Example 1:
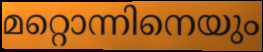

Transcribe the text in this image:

മറ്റൊന്നിനെയും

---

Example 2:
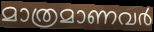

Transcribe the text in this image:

മാത്രമാണവർ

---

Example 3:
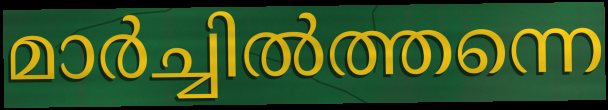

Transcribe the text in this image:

മാർച്ചിൽത്തന്നെ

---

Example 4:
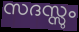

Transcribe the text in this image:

സദസ്സും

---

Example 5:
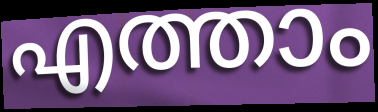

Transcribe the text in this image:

എത്താം